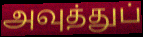
அவுத்துப்